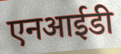
एनआईडी